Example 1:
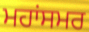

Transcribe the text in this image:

ਮਹਾਂਸਮਰ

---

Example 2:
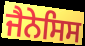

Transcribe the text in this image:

ਜੈਨੇਸਿਸ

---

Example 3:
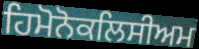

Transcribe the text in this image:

ਹਿਮੋਨੋਕਲਿਸੀਅਮ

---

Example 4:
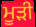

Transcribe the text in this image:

ਮੂੜੀ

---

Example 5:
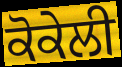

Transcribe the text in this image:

ਕੋਕੇਲੀ